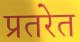
प्रतरेत